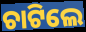
ଚାଟିଲେ